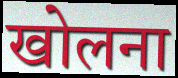
खोलना